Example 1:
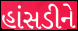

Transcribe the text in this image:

હાંસડીને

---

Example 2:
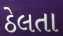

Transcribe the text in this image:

ઠેલતા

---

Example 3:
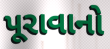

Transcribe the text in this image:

પૂરાવાનો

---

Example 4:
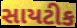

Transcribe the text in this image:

સાયટીક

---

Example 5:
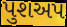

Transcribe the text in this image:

પુશઅપ